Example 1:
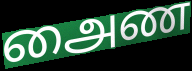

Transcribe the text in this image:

அைண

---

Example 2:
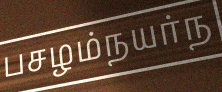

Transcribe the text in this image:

பசழம்நயர்ந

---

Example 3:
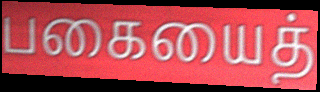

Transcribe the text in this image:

பகையைத்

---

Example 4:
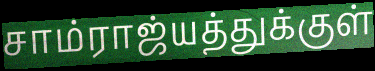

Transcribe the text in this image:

சாம்ராஜ்யத்துக்குள்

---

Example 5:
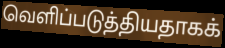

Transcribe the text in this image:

வெளிப்படுத்தியதாகக்